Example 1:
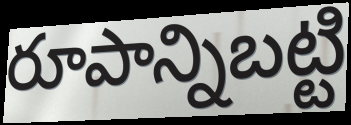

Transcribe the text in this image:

రూపాన్నిబట్టి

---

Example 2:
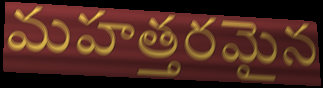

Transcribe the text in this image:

మహత్తరమైన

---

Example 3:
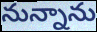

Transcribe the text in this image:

నున్నాను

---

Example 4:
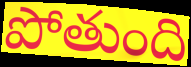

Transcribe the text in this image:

పోతుంది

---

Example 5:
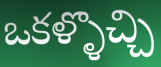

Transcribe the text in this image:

ఒకళ్ళొచ్చి